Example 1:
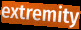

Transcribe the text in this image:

extremity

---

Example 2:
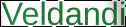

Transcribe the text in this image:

Veldandi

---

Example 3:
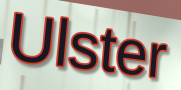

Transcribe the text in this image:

Ulster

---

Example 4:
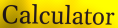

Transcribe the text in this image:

Calculator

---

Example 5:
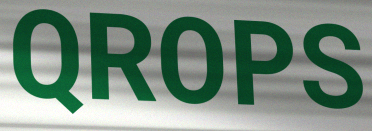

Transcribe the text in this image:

QROPS